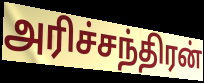
அரிச்சந்திரன்